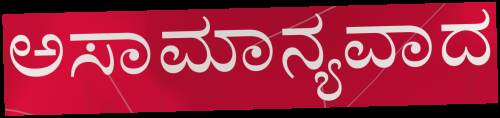
ಅಸಾಮಾನ್ಯವಾದ